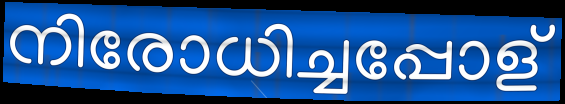
നിരോധിച്ചപ്പോള്